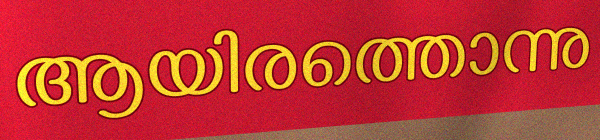
ആയിരത്തൊന്നു